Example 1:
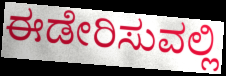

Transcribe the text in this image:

ಈಡೇರಿಸುವಲ್ಲಿ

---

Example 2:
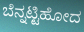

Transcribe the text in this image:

ಬೆನ್ನಟ್ಟಿಹೋದ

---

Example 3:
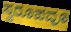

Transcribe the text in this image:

ಸ್ವರೂಪವೂ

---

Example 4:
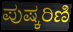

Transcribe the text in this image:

ಪುಷ್ಕರಿಣಿ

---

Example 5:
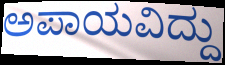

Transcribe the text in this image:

ಅಪಾಯವಿದ್ದು